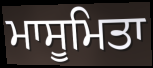
ਮਾਸੂਮਿਤਾ